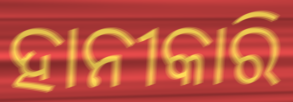
ହାନୀକାରି